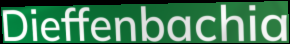
Dieffenbachia